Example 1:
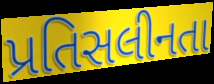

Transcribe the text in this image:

પ્રતિસલીનતા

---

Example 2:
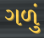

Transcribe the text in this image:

ગળું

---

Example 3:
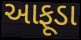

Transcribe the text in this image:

આફૂડા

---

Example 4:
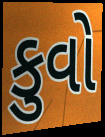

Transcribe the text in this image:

કુવો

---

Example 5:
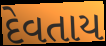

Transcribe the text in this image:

દેવતાય